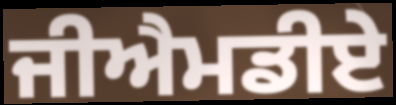
ਜੀਐਮਡੀਏ